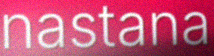
nastana